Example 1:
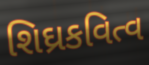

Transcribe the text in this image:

શિઘ્રકવિત્વ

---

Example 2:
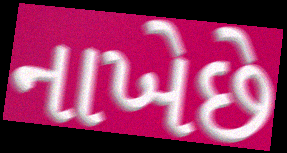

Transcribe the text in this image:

નાખેછે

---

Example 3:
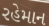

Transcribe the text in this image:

રહેમાન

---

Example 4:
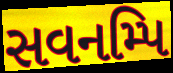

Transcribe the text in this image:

સવનમ્પિ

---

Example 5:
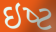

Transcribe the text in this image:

ઇષ્‍ટ